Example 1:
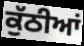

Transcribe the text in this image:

ਕੁੱਠੀਆਂ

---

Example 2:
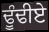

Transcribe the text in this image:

ਢੂੰਢੀਏ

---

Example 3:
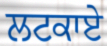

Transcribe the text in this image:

ਲਟਕਾਏ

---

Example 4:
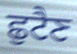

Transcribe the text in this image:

ਛੁਟੈਣ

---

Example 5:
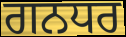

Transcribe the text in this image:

ਗਨਧਰ